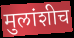
मुलांशीच